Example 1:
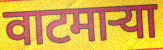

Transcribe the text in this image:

वाटमाऱ्या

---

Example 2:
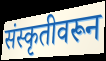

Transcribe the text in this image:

संस्कृतीवरून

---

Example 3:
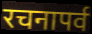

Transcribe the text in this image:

रचनापर्व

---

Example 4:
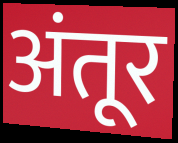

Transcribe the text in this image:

अंतूर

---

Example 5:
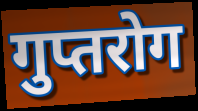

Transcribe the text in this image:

गुप्तरोग